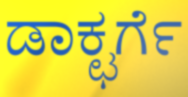
ಡಾಕ್ಟರ್ಗೆ